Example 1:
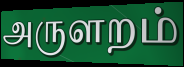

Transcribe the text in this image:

அருளறம்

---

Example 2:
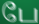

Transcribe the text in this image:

பே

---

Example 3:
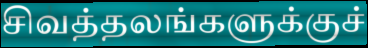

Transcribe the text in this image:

சிவத்தலங்களுக்குச்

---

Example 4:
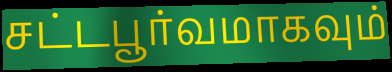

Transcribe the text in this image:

சட்டபூர்வமாகவும்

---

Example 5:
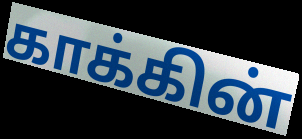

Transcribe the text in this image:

காக்கின்